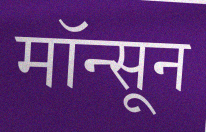
मॉन्सून